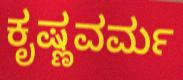
ಕೃಷ್ಣವರ್ಮ